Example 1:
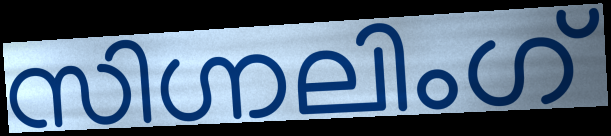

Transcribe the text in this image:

സിഗ്നലിംഗ്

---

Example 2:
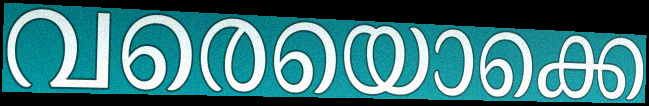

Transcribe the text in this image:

വരെയൊക്കെ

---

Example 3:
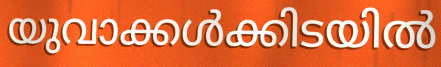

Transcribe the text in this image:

യുവാക്കൾക്കിടയിൽ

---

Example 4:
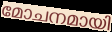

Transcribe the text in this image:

മോചനമായി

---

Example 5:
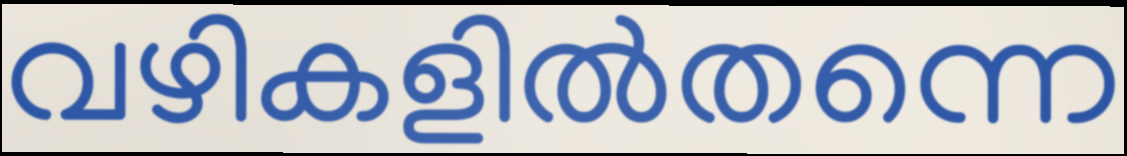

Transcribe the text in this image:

വഴികളിൽതന്നെ